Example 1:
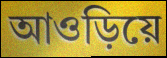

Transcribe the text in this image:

আওড়িয়ে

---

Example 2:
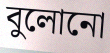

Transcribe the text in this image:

বুলোনো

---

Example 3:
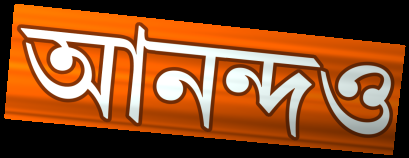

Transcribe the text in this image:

আনন্দও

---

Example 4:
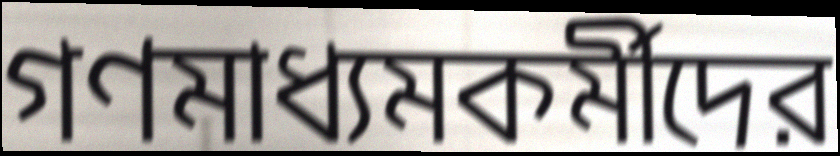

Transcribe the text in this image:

গণমাধ্যমকর্মীদের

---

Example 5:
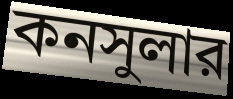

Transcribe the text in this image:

কনসুলার